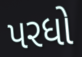
પરધો